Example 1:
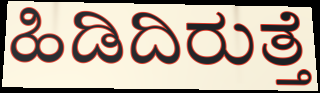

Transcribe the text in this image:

ಹಿಡಿದಿರುತ್ತೆ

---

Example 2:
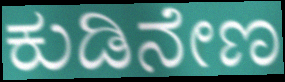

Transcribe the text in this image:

ಕುಡಿನೇಣ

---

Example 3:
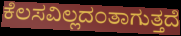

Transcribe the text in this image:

ಕೆಲಸವಿಲ್ಲದಂತಾಗುತ್ತದೆ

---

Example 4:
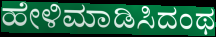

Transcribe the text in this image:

ಹೇಳಿಮಾಡಿಸಿದಂಥ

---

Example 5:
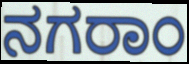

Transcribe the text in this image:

ನಗರಾಂ